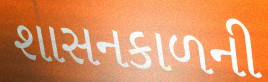
શાસનકાળની